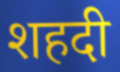
शहदी